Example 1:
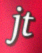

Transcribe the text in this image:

jt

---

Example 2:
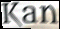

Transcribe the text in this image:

Kan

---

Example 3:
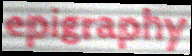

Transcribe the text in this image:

epigraphy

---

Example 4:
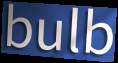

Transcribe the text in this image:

bulb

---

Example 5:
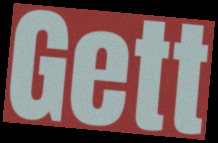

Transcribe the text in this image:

Gett